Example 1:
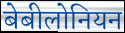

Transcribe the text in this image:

बेबीलोनियन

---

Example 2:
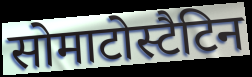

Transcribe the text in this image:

सोमाटोस्टैटिन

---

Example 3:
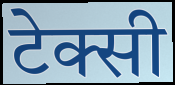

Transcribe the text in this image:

टेक्‍सी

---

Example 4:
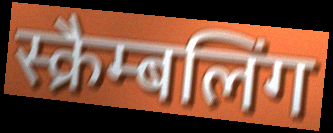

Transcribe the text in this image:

स्क्रैम्बलिंग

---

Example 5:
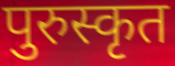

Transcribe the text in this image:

पुरुस्कृत